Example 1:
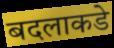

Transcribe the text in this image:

बदलाकडे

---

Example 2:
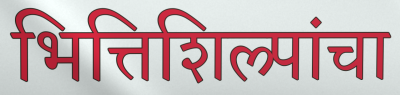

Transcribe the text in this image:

भित्तिशिल्पांचा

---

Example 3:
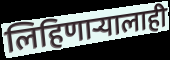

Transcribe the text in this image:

लिहिणाऱ्यालाही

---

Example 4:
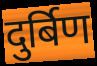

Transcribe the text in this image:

दुर्बिण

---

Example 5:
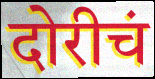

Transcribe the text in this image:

दोरीचं